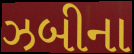
ઝબીના